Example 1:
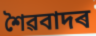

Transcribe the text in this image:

শৈৱবাদৰ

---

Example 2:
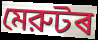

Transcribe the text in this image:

মেৰুটৰ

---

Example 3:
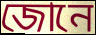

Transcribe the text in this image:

জোনে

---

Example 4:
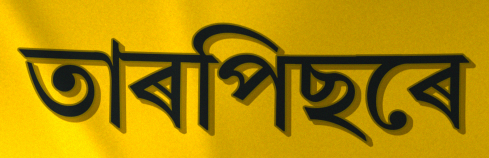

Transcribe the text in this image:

তাৰপিছৰে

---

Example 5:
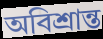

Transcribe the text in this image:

অবিশ্ৰান্ত